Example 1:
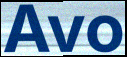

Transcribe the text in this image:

Avo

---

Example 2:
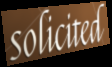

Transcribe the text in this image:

solicited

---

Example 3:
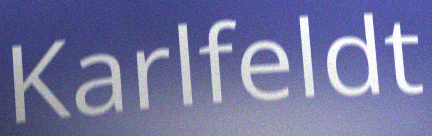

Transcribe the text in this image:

Karlfeldt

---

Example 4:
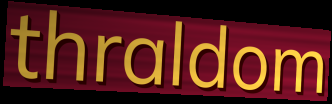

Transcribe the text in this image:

thraldom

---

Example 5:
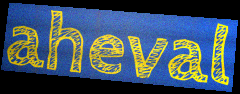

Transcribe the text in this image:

aheval